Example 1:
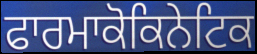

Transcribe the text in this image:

ਫਾਰਮਾਕੋਕਿਨੇਟਿਕ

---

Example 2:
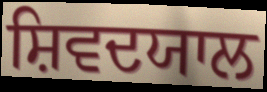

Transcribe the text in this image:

ਸ਼ਿਵਦਯਾਲ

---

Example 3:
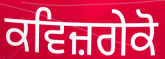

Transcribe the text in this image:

ਕਵਿਜ਼ਗੇਕੋ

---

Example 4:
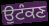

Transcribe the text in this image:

ਉਟੰਕਣ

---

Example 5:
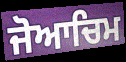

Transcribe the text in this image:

ਜੋਆਚਿਮ